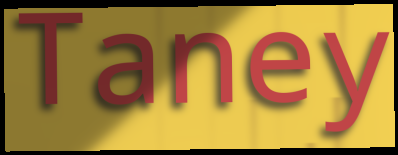
Taney